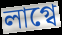
লাগ্বে